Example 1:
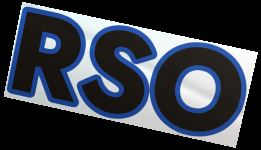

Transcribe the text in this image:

RSO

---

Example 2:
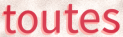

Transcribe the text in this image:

toutes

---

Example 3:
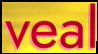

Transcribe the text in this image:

veal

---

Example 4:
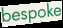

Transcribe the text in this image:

bespoke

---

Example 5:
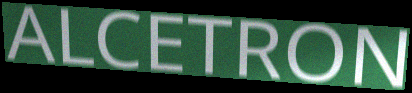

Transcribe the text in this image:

ALCETRON